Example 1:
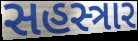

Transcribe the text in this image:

સહસ્ત્રાર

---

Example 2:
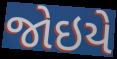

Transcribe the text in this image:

જોઇયે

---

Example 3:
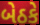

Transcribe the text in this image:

બેઠકે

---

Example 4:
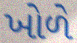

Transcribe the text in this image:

ખોળે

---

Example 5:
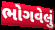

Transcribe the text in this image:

ભોગવેલું